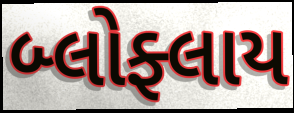
બ્લોફ્લાય